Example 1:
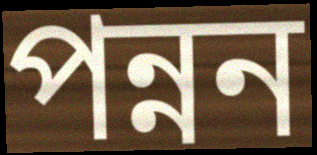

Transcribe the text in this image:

পন্নন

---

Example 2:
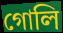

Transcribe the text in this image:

গোলি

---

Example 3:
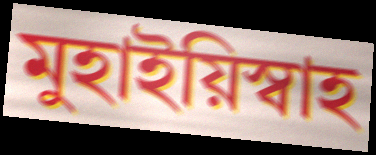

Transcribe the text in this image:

মুহাইয়িস্বাহ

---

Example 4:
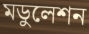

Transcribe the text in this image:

মডুলেশন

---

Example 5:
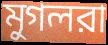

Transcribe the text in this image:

মুগলরা